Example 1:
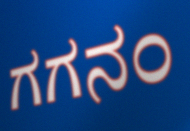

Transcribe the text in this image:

ಗಗನಂ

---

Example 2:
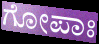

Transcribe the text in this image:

ಗೋಪಾಃ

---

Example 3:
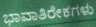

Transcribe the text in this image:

ಭಾವಾತಿರೇಕಗಳು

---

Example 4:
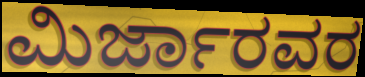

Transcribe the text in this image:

ಮಿರ್ಜಾರವರ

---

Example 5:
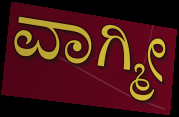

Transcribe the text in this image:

ವಾಗ್ಮೀ